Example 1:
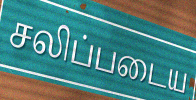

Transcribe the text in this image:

சலிப்படைய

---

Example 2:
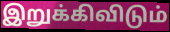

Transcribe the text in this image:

இறுக்கிவிடும்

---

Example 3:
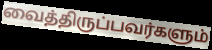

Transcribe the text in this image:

வைத்திருப்பவர்களும்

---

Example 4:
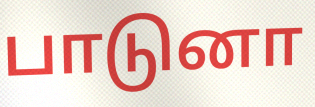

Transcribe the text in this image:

பாடுனா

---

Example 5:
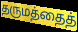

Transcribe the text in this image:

தருமத்தைத்